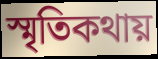
স্মৃতিকথায়